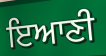
ਇਆਣੀ